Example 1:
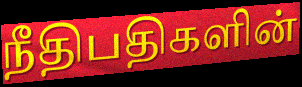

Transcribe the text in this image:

நீதிபதிகளின்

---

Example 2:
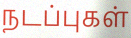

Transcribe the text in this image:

நடப்புகள்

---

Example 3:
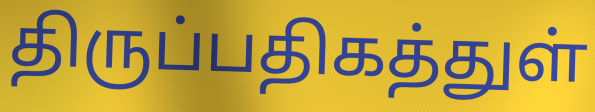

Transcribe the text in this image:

திருப்பதிகத்துள்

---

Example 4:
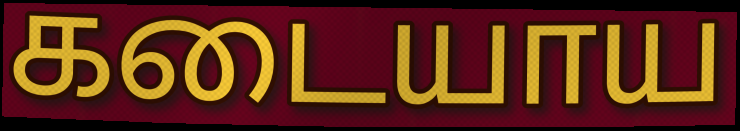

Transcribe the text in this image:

கடையாய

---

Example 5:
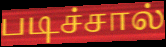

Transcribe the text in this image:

படிச்சால்